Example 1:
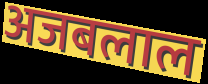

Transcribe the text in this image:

अजबलाल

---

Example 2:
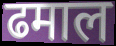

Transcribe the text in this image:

ढमाल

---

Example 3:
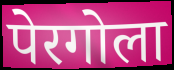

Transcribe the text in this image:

पेरगोला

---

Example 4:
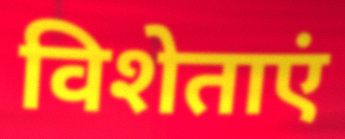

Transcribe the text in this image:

विशेताएं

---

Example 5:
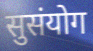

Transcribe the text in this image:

सुसंयोग